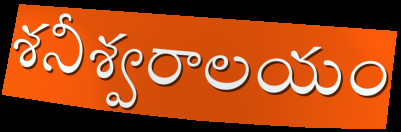
శనీశ్వరాలయం